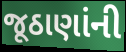
જૂઠાણાંની